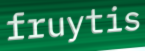
fruytis